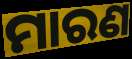
ମାରଣ